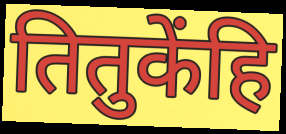
तितुकेंहि